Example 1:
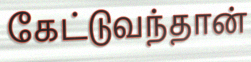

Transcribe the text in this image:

கேட்டுவந்தான்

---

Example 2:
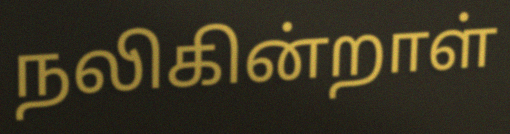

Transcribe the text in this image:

நலிகின்றாள்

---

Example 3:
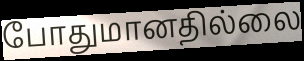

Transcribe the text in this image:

போதுமானதில்லை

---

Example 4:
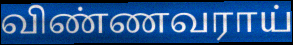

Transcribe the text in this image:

விண்ணவராய்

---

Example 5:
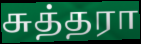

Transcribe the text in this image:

சுத்தரா